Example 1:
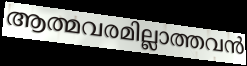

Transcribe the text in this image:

ആത്മവരമില്ലാത്തവൻ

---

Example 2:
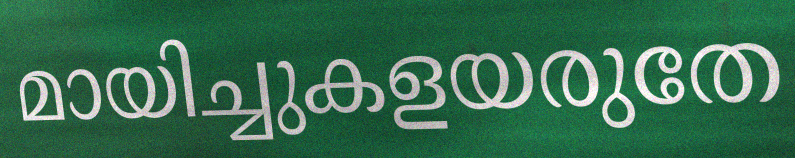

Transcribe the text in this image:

മായിച്ചുകളയരുതേ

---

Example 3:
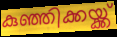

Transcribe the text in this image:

കുഞ്ഞിക്കയ്ക്ക്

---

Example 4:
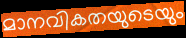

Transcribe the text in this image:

മാനവികതയുടെയും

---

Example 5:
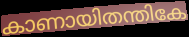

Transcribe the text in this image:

കാണായിതന്തികേ